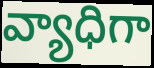
వ్యాధిగా